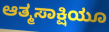
ಆತ್ಮಸಾಕ್ಷಿಯೂ